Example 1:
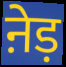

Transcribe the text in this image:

ऩेड़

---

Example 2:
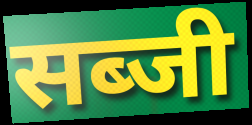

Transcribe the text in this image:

सब्जी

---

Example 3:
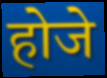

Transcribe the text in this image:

होजे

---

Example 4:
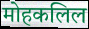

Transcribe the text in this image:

मोहकलिल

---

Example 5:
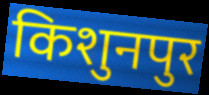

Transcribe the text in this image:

किशुनपुर